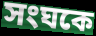
সংঘকে